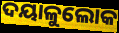
ଦୟାଳୁଲୋକ